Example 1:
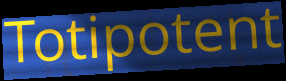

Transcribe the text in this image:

Totipotent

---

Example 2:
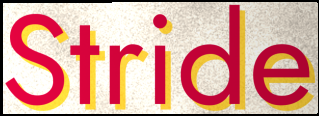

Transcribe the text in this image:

Stride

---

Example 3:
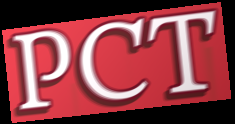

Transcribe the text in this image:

PCT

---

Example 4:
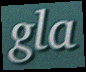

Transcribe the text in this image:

gla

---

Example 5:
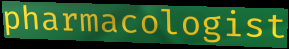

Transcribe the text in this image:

pharmacologist